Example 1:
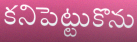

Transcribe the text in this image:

కనిపెట్టుకొను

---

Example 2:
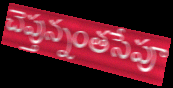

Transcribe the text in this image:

చెప్తున్నంతసేపూ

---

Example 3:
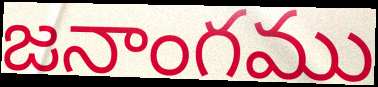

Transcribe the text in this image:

జనాంగము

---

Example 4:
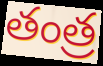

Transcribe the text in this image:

తంత్ర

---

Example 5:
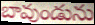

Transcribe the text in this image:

బావుండును